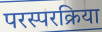
परस्परक्रिया